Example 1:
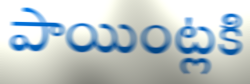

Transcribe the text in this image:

పాయింట్లకి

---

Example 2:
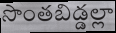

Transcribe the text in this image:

సొంతబిడ్డల్లా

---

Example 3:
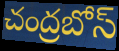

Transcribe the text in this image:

చంద్రబోస్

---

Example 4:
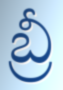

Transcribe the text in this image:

బ్రీ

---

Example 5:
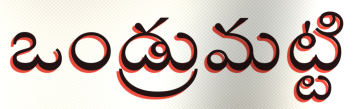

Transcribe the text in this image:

ఒండ్రుమట్టి